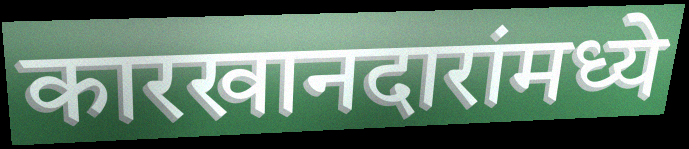
कारखानदारांमध्ये